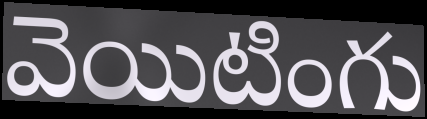
వెయిటింగు